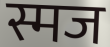
स्मज